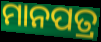
ମାନପତ୍ର